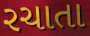
રચાતા